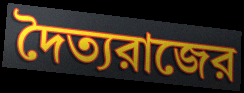
দৈত্যরাজের